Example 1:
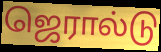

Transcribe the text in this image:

ஜெரால்டு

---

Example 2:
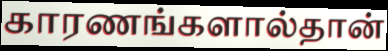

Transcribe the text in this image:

காரணங்களால்தான்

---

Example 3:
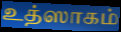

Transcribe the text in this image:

உத்ஸாகம்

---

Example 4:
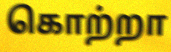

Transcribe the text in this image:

கொற்றா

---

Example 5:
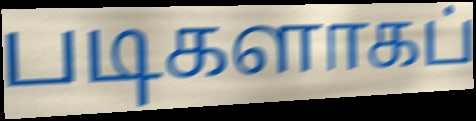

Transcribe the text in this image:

படிகளாகப்